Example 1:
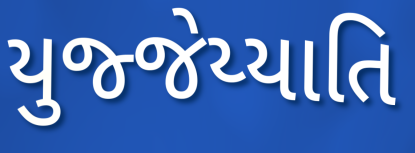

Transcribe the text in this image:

યુજ્જેય્યાતિ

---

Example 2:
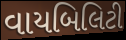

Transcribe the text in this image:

વાયબિલિટી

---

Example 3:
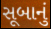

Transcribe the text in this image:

સૂબાનું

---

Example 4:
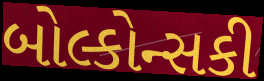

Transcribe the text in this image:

બોલ્કોન્સકી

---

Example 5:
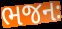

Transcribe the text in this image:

ભજનઃ